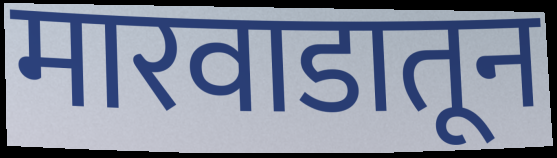
मारवाडातून